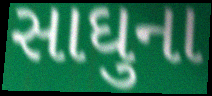
સાઘુના